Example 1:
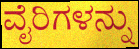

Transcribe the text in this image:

ವೈರಿಗಳನ್ನು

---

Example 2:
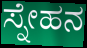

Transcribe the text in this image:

ಸ್ನೇಹನ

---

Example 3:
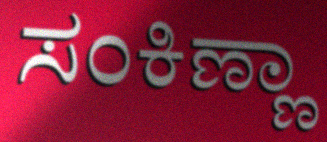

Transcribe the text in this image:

ಸಂಕಿಣ್ಣಾ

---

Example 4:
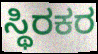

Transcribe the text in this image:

ಸ್ಥಿರಕರ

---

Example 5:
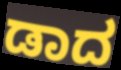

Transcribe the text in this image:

ಡಾದ